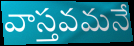
వాస్తవమనే